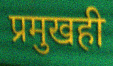
प्रमुखही